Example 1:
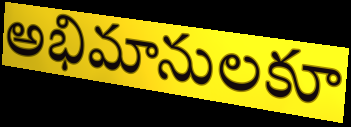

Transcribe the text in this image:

అభిమానులకూ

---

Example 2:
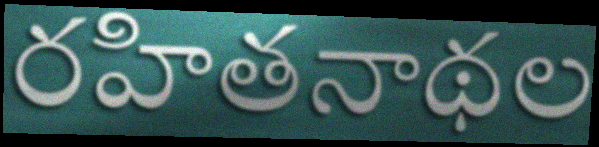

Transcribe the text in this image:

రహితనాథల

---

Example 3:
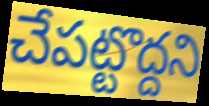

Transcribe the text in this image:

చేపట్టొద్దని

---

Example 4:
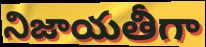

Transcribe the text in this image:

నిజాయతీగా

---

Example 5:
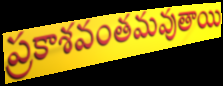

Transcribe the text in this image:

ప్రకాశవంతమవుతాయి